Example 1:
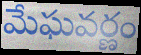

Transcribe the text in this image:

మేఘవర్ణం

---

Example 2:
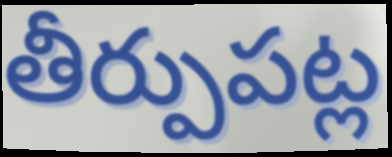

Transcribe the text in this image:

తీర్పుపట్ల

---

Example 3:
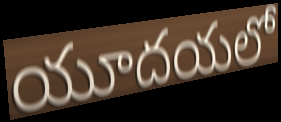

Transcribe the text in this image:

యూదయలో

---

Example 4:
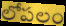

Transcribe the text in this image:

లోపలం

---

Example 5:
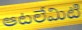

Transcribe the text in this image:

ఆటలేమిటి